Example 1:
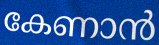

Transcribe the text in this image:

കേണാൻ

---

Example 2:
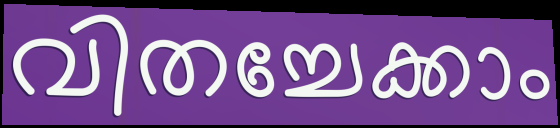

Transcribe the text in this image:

വിതച്ചേക്കാം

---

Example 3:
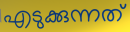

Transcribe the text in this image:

എടുക്കുന്നത്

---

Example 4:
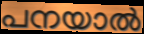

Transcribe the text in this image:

പനയാൽ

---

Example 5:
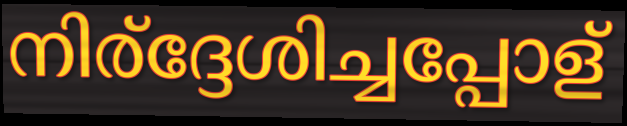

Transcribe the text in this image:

നിര്ദ്ദേശിച്ചപ്പോള്